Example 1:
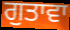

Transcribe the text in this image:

ਗੁਤਾਵਾ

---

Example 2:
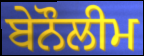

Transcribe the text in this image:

ਬੇਨੌਲੀਮ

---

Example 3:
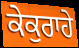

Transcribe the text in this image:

ਕੇਕੁਰਾਹੇ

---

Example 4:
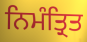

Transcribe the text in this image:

ਨਿਮੰਤ੍ਰਿਤ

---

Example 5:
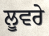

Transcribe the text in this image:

ਲੂਵਰੇ